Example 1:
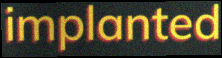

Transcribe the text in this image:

implanted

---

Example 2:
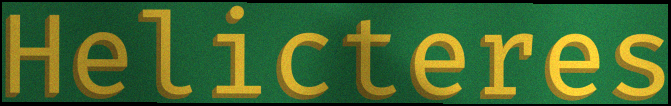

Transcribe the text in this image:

Helicteres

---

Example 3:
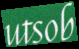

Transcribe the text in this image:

utsob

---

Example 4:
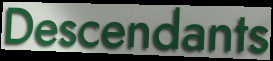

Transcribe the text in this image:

Descendants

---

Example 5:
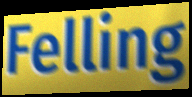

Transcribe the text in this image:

Felling